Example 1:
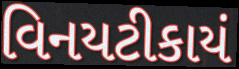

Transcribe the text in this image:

વિનયટીકાયં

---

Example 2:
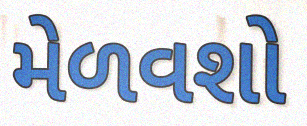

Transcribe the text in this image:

મેળવશો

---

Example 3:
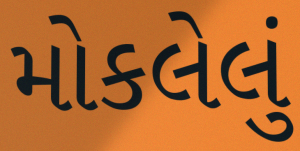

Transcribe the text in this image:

મોકલેલું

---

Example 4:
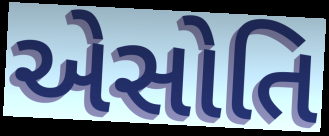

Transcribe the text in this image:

એસોતિ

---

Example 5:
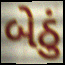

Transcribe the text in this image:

બેઠું